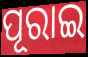
ପୂରାଇ